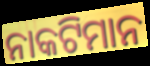
ନାକଟିମାନ